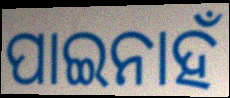
ପାଇନାହଁ